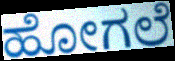
ಹೋಗಲೆ